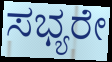
ಸಭ್ಯರೇ